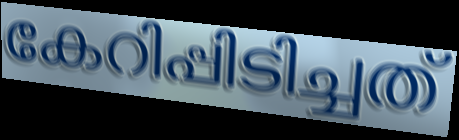
കേറിപ്പിടിച്ചത്